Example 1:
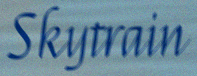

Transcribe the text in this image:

Skytrain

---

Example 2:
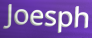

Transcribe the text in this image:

Joesph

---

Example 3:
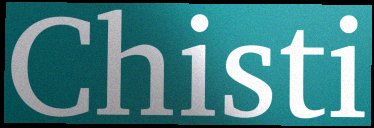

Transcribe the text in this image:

Chisti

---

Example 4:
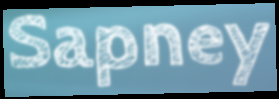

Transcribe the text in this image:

Sapney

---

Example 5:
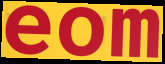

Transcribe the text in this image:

eom